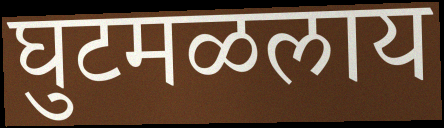
घुटमळलाय